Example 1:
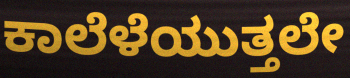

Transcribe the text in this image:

ಕಾಲೆಳೆಯುತ್ತಲೇ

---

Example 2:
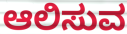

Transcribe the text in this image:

ಆಲಿಸುವ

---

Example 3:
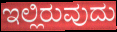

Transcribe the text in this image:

ಇಲ್ಲಿರುವುದು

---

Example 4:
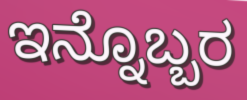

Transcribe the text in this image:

ಇನ್ನೊಬ್ಬರ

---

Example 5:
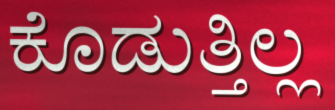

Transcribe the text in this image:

ಕೊಡುತ್ತಿಲ್ಲ